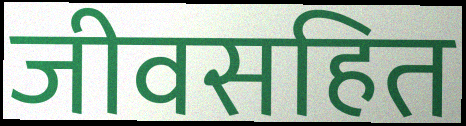
जीवसहित